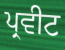
ਪ੍ਰਵੀਟ